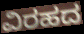
ವಿರಹದ